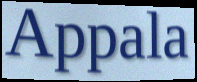
Appala